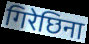
गिरेछिना